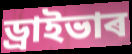
ড্ৰাইভাৰ